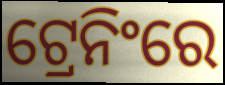
ଟ୍ରେନିଂରେ